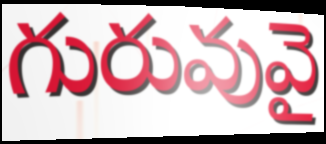
గురువువై